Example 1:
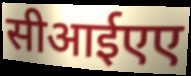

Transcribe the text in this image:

सीआईएए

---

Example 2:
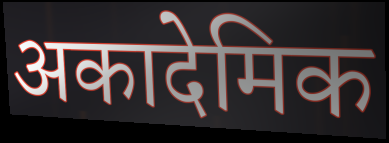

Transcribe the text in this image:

अकादेमिक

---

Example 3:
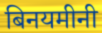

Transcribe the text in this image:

बिनयमीनी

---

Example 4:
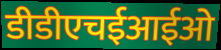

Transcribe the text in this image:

डीडीएचईआईओ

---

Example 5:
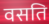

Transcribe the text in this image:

वसति